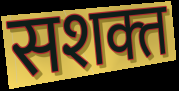
सशक्‍त